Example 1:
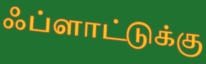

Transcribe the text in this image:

ஃப்ளாட்டுக்கு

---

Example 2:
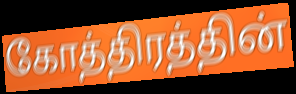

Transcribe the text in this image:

கோத்திரத்தின்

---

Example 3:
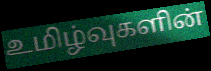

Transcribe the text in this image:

உமிழ்வுகளின்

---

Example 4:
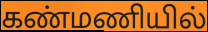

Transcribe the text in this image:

கண்மணியில்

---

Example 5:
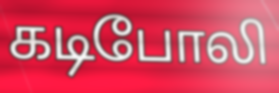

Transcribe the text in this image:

கடிபோலி